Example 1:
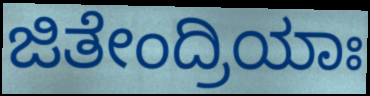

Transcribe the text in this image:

ಜಿತೇಂದ್ರಿಯಾಃ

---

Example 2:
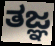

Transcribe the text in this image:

ತಜ್ಞ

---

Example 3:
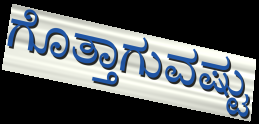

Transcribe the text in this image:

ಗೊತ್ತಾಗುವಷ್ಟು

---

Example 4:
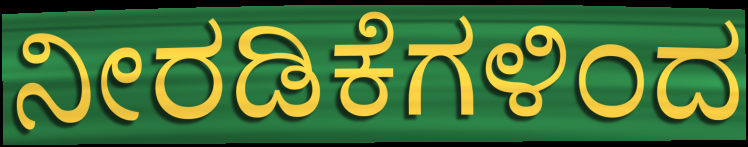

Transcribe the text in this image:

ನೀರಡಿಕೆಗಳಿಂದ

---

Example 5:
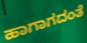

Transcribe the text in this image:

ಹಾಗಾಗದಂತೆ